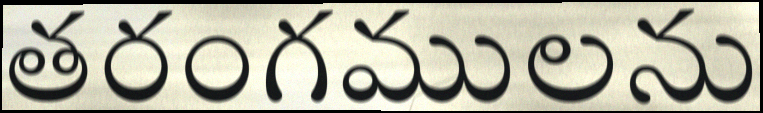
తరంగములను